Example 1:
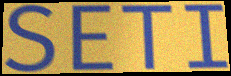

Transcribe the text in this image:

SETI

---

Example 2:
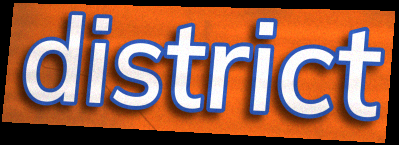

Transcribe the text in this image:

district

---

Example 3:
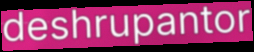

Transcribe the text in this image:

deshrupantor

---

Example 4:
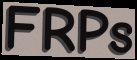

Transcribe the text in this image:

FRPs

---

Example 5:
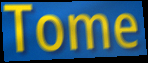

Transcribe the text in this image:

Tome